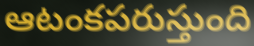
ఆటంకపరుస్తుంది